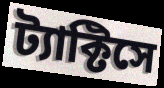
ট্যাক্টিসে